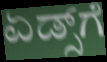
ಏಡ್ಸ್‌ಗೆ